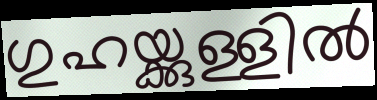
ഗുഹയ്ക്കുള്ളിൽ